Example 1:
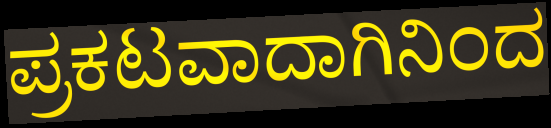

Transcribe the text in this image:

ಪ್ರಕಟವಾದಾಗಿನಿಂದ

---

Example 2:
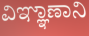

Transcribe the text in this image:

ವಿಞ್ಞಾಣಾನಿ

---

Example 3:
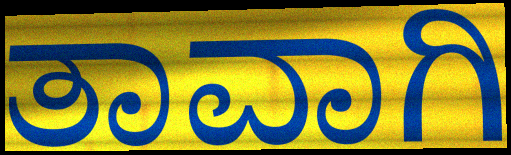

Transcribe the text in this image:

ತಾವಾಗಿ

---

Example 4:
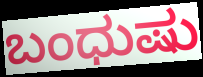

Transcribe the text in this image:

ಬಂಧುಷು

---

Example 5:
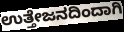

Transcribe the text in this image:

ಉತ್ತೇಜನದಿಂದಾಗಿ